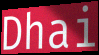
Dhai